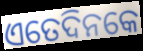
ଏତେଦିନକେ